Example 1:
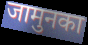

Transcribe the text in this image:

जामुनका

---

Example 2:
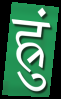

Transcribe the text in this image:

ह्रुं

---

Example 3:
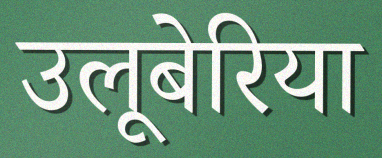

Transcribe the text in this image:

उलूबेरिया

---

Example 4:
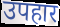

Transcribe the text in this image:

उपहार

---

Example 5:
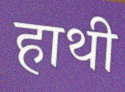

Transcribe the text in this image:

हाथी